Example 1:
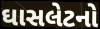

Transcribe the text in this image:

ઘાસલેટનો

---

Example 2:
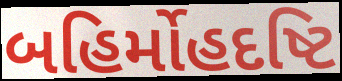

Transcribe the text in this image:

બહિર્મોહદષ્ટિ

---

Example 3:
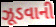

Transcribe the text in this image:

ઝૂડવાની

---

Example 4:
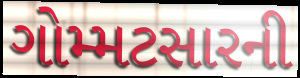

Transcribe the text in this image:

ગોમ્મટસારની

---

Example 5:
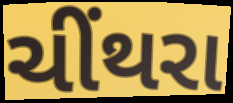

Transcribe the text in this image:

ચીંથરા